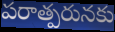
పరాత్పరునకు